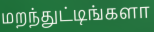
மறந்துட்டிங்களா